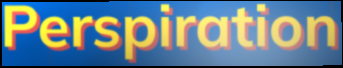
Perspiration